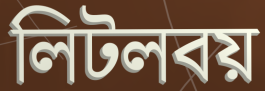
লিটলবয়